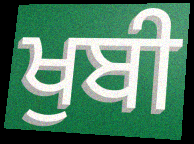
ਖੁਬੀ